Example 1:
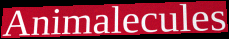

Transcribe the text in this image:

Animalecules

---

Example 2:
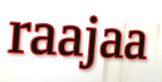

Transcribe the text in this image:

raajaa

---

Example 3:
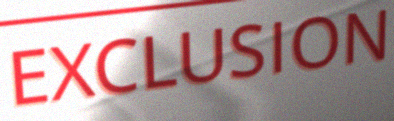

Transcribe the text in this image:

EXCLUSION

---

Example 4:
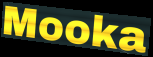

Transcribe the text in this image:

Mooka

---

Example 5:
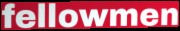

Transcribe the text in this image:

fellowmen